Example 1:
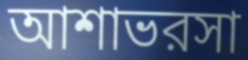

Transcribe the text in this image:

আশাভরসা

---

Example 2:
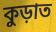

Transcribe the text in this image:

কুড়াত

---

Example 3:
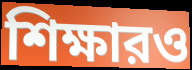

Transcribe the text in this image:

শিক্ষারও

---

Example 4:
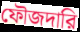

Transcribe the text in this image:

ফৌজদারি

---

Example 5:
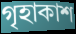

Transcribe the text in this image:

গৃহাকাশ